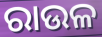
ରାଉଳ